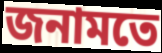
জনামতে